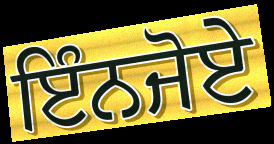
ਇੰਨਜੋਏ